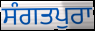
ਸੰਗਤਪੁਰਾ